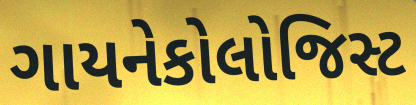
ગાયનેકોલોજિસ્ટ